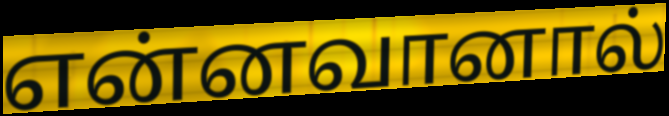
என்னவானால்